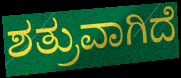
ಶತ್ರುವಾಗಿದೆ